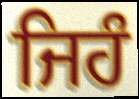
ਜਿਹੰ